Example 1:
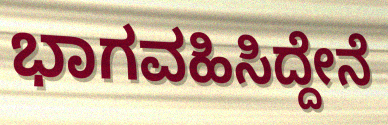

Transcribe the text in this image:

ಭಾಗವಹಿಸಿದ್ದೇನೆ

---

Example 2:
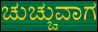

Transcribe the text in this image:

ಚುಚ್ಚುವಾಗ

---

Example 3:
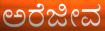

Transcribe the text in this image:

ಅರೆಜೀವ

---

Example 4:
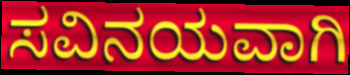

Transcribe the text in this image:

ಸವಿನಯವಾಗಿ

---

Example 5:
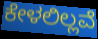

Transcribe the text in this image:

ಕೇಳಲಿಲ್ಲವೆ